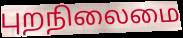
புறநிலைமை